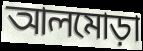
আলমোড়া